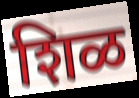
शिळ